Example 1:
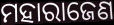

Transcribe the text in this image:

ମହାରାଜେଣ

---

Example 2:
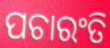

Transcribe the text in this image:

ପଚାରଂତି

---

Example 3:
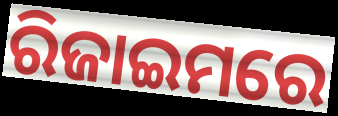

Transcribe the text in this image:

ରିଜାଇମରେ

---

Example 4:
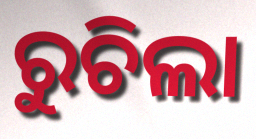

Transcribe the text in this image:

ରୁଚିଲା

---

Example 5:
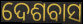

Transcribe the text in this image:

ଦେଶବାସ